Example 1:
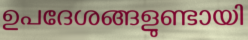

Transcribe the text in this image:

ഉപദേശങ്ങളുണ്ടായി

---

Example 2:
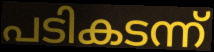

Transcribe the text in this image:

പടികടന്ന്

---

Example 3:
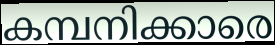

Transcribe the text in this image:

കമ്പനിക്കാരെ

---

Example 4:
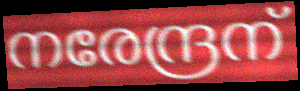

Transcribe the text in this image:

നരേന്ദ്രന്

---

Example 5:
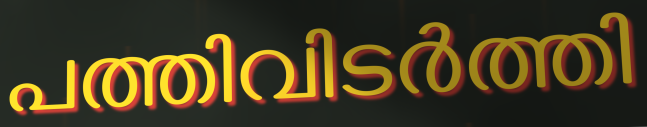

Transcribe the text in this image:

പത്തിവിടർത്തി